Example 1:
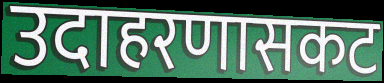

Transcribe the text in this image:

उदाहरणासकट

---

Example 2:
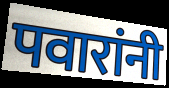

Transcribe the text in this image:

पवारांनी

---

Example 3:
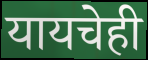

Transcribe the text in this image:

यायचेही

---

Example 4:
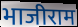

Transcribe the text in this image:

भाजीराम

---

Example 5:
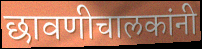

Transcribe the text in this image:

छावणीचालकांनी